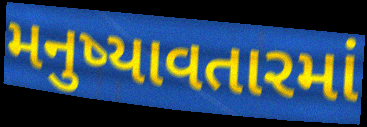
મનુષ્યાવતારમાં